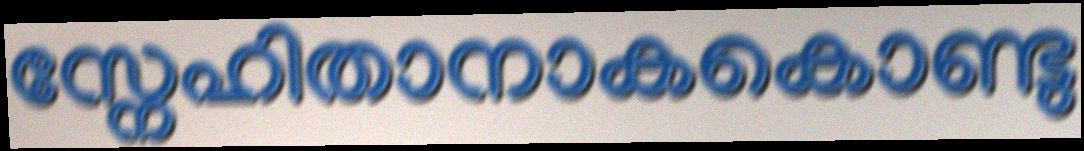
സ്നേഹിതാനാകകൊണ്ടു